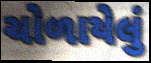
ચોળાયેલું